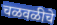
चळवळीचे